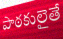
పాఠకులైతే